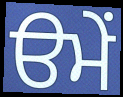
ੳਮੇਂ